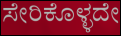
ಸೇರಿಕೊಳ್ಳದೇ